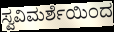
ಸ್ವವಿಮರ್ಶೆಯಿಂದ